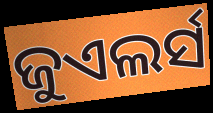
ଜୁଏଲର୍ସ